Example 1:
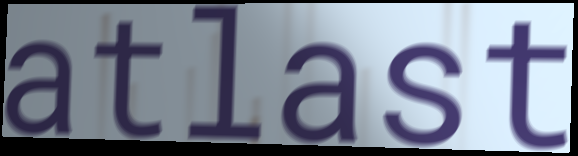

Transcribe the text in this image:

atlast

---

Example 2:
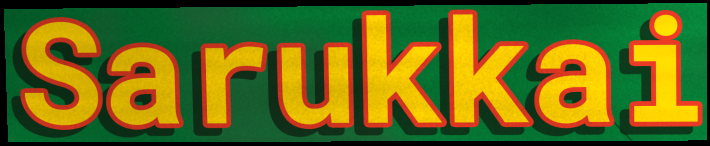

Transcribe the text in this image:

Sarukkai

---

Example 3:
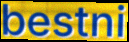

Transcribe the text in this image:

bestni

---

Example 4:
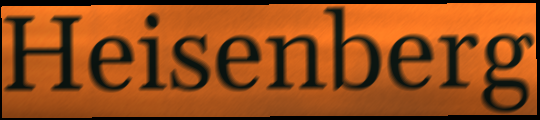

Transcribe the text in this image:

Heisenberg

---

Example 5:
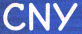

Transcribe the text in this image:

CNY